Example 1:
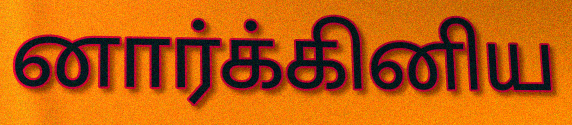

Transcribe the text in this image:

னார்க்கினிய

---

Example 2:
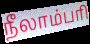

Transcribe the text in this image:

நீலாம்பரி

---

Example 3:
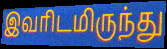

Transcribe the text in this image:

இவரிடமிருந்து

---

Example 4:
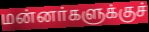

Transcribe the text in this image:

மன்னர்களுக்குச்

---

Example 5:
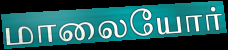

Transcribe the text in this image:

மாலையோர்